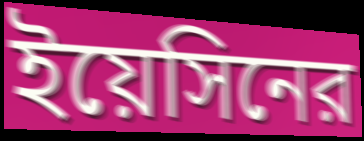
ইয়েসিনের